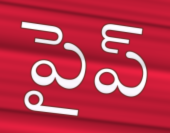
పైప్